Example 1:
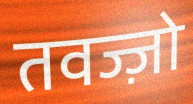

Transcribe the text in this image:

तवज्ज़ो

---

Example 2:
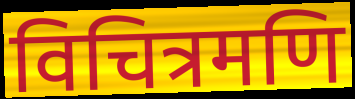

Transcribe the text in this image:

विचित्रमणि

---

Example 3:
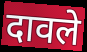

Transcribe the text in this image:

दावले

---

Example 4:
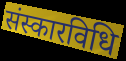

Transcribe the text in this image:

संस्कारविधि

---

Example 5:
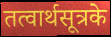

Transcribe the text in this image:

तत्वार्थसूत्रके